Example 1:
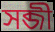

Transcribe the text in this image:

সব্জী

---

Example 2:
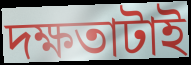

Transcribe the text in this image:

দক্ষতাটাই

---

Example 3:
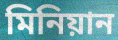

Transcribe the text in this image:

মিনিয়ান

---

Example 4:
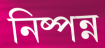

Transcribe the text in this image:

নিষ্পন্ন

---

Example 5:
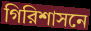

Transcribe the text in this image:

গিরিশাসনে